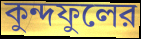
কুন্দফুলের